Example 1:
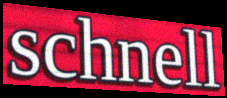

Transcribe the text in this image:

schnell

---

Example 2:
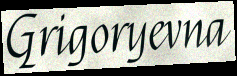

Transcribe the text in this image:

Grigoryevna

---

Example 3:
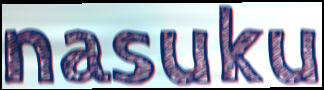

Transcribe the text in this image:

nasuku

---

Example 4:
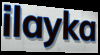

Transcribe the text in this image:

ilayka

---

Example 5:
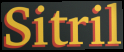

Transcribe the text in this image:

Sitril